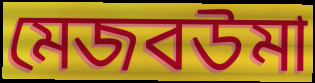
মেজবউমা